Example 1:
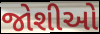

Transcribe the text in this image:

જોશીઓ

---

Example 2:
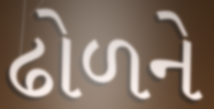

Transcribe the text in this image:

ઢોળને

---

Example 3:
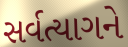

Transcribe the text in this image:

સર્વત્યાગને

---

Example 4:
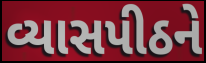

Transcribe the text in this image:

વ્યાસપીઠને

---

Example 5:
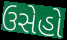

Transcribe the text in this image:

ઉસેહો